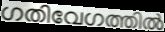
ഗതിവേഗത്തിൽ